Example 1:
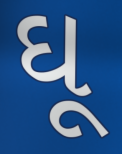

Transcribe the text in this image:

ઘૂ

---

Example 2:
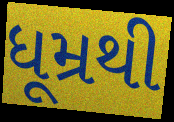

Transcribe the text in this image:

ધૂમ્રથી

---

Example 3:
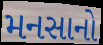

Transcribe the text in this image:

મનસાનો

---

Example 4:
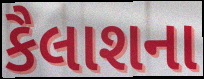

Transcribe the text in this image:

કૈલાશના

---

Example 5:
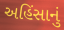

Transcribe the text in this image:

અહિંસાનું